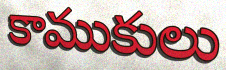
కాముకులు